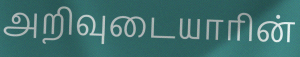
அறிவுடையாரின்